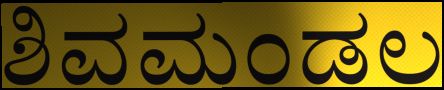
ಶಿವಮಂಡಲ